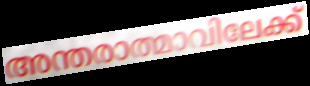
അന്തരാത്മാവിലേക്ക്